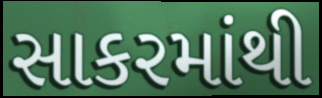
સાકરમાંથી